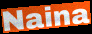
Naina